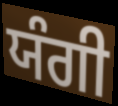
ਯੰਗੀ